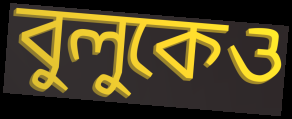
বুলুকেও